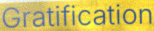
Gratification